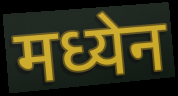
मध्येन